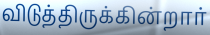
விடுத்திருக்கின்றார்